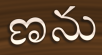
ణను